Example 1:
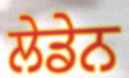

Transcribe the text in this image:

ਲੇਡੇਨ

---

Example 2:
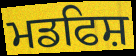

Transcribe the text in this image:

ਮਡਫਿਸ਼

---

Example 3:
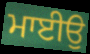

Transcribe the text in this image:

ਮਾਈਉ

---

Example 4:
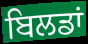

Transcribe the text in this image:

ਬਿਲਡਾਂ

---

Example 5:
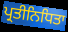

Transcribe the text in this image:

ਪ੍ਰਤੀਨਿਧਿਤਾ